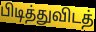
பிடித்துவிடத்